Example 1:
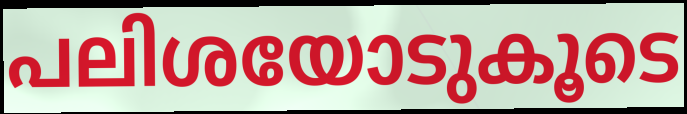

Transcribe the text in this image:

പലിശയോടുകൂടെ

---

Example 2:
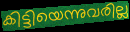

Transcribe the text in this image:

കിട്ടിയെന്നുവരില്ല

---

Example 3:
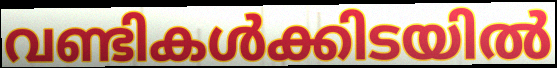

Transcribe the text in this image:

വണ്ടികൾക്കിടയിൽ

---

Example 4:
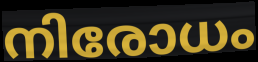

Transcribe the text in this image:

നിരോധം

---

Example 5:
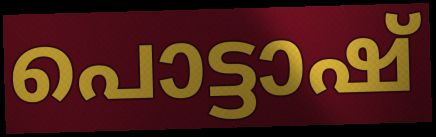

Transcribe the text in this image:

പൊട്ടാഷ്